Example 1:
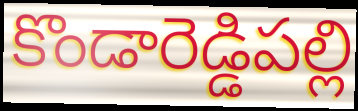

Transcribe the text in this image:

కొండారెడ్డిపల్లి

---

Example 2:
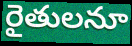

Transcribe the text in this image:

రైతులనూ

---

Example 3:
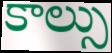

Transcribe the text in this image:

కాల్సు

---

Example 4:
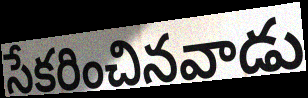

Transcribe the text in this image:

సేకరించినవాడు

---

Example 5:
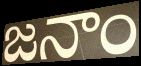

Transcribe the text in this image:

జనాం